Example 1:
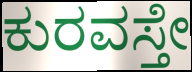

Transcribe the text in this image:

ಕುರವಸ್ತೇ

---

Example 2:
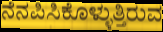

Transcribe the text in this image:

ನೆನಪಿಸಿಕೊಳ್ಳುತ್ತಿರುವ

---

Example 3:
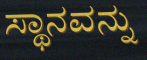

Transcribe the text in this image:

ಸ್ಥಾನವನ್ನು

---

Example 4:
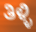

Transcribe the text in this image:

ತಿಳ್ಳಿ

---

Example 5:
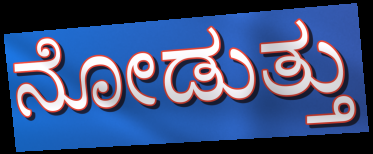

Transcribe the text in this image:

ನೋಡುತ್ತು